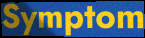
Symptom